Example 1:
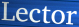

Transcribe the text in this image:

Lector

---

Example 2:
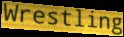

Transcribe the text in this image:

Wrestling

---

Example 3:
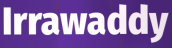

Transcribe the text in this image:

Irrawaddy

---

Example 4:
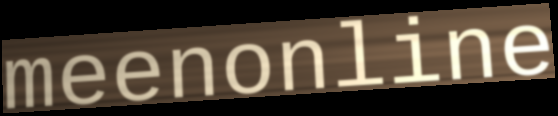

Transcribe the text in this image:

meenonline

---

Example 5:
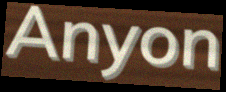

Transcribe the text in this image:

Anyon